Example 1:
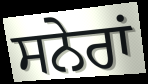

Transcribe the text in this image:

ਸਨੇਰਾਂ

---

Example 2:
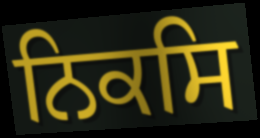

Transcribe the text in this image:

ਨਿਕਸਿ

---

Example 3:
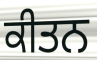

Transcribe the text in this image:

ਕੀਤਨ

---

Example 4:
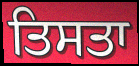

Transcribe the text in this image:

ਤਿਸਤਾ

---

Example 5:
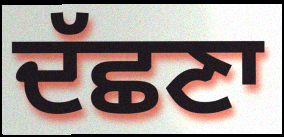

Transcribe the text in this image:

ਦੱਛਣਾ